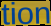
tion